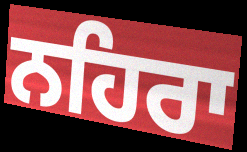
ਨਹਿਰਾ